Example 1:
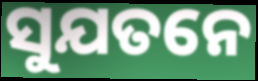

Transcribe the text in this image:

ସୁଯତନେ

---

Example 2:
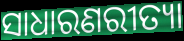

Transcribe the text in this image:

ସାଧାରଣରୀତ୍ୟା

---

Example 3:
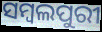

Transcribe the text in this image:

ସମ୍ବଲପୁରୀ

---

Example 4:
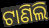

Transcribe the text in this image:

ଟାଣିଲି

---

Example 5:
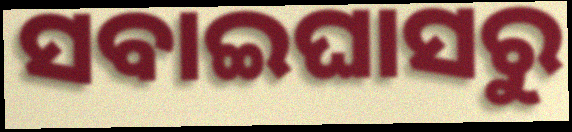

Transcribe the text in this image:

ସବାଇଘାସରୁ